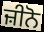
ਜ਼ੀਨੋ